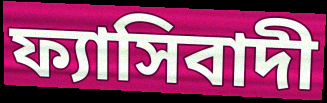
ফ্যাসিবাদী